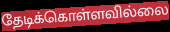
தேடிக்கொள்ளவில்லை